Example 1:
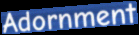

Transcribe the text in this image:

Adornment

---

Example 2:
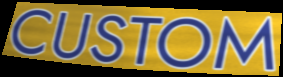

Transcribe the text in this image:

CUSTOM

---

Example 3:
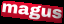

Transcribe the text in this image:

magus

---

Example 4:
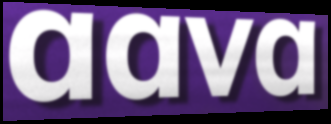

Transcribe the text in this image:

aava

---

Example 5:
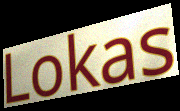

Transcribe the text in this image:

Lokas